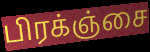
பிரக்ஞ்சை